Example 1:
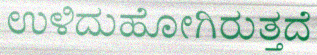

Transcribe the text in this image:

ಉಳಿದುಹೋಗಿರುತ್ತದೆ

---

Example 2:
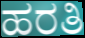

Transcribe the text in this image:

ಹರತಿ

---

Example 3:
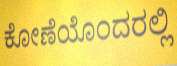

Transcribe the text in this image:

ಕೋಣೆಯೊಂದರಲ್ಲಿ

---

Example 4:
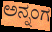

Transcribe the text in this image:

ಅನ್ನಂಗ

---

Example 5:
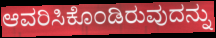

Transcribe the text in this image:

ಆವರಿಸಿಕೊಂಡಿರುವುದನ್ನು